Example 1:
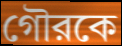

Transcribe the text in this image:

গৌরকে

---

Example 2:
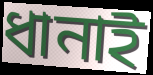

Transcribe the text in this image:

ধানাই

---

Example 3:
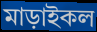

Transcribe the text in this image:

মাড়াইকল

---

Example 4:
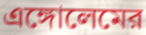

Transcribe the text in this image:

এঙ্গোলেমের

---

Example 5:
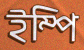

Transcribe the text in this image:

ইম্পি